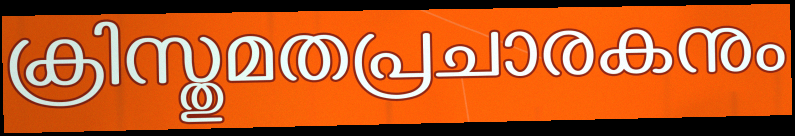
ക്രിസ്തുമതപ്രചാരകനും